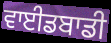
ਵਾਈਡਬਾਡੀ